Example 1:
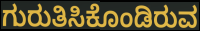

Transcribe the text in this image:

ಗುರುತಿಸಿಕೊಂಡಿರುವ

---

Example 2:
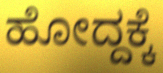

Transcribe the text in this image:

ಹೋದ್ದಕ್ಕೆ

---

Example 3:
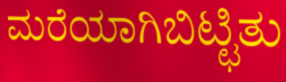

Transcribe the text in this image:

ಮರೆಯಾಗಿಬಿಟ್ಟಿತು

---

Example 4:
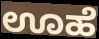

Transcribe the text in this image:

ಊಹೆ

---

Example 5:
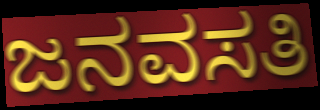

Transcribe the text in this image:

ಜನವಸತಿ